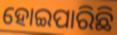
ହୋଇପାରିଛି